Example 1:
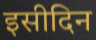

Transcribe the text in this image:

इसीदिन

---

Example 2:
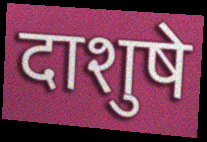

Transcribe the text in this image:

दाशुषे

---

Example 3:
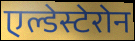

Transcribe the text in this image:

एल्डेस्टेरोन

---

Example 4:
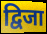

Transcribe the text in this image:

द्विजा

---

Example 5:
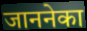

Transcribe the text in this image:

जाननेका